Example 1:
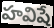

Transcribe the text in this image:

హవిషే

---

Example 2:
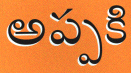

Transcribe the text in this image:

అప్పకి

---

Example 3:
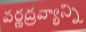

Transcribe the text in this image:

వర్ణద్రవ్యాన్ని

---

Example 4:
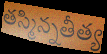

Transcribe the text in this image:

తస్మిన్నతీత్య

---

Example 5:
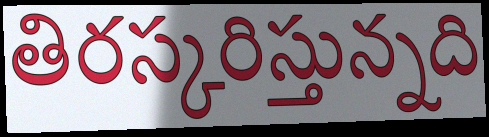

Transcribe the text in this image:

తిరస్కరిస్తున్నది